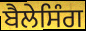
ਬੈਲੇਸਿੰਗ